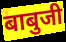
बाबुजी